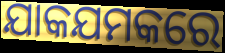
ଯାକଯମକରେ